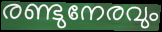
രണ്ടുനേരവും